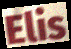
Elis